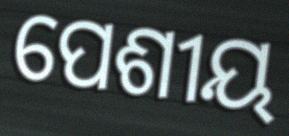
ପେଶୀୟ